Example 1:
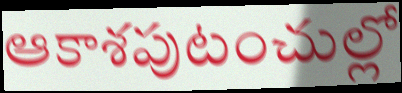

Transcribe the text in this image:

ఆకాశపుటంచుల్లో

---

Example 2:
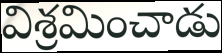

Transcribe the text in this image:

విశ్రమించాడు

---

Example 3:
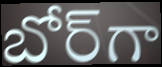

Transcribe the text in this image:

బోర్‌గా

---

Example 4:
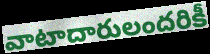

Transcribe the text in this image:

వాటాదారులందరికీ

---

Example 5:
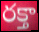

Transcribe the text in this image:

రక్తా